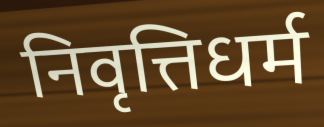
निवृत्तिधर्म